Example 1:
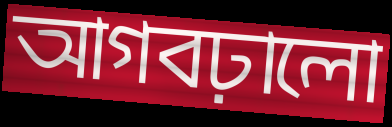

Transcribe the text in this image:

আগবঢ়ালো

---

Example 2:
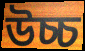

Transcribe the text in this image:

উচ্চ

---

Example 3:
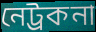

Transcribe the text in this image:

নেট্ৰকনা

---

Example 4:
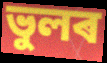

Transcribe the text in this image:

ভুলৰ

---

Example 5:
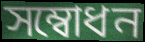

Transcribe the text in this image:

সম্বোধন